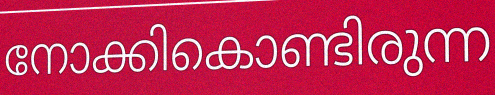
നോക്കികൊണ്ടിരുന്ന